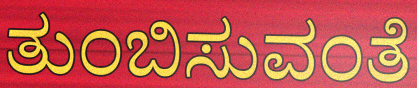
ತುಂಬಿಸುವಂತೆ